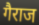
गैराज